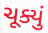
ચૂક્યું